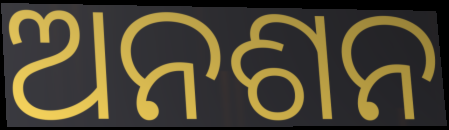
ଅନଶନ